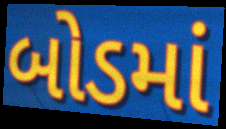
બોડમાં